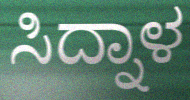
ಸಿದ್ನಾಳ